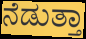
ನೆಡುತ್ತಾ